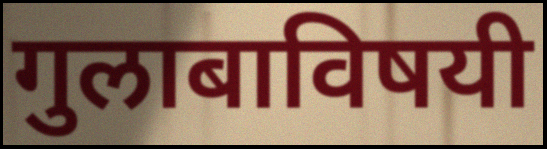
गुलाबाविषयी